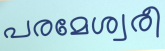
പരമേശ്വരീ